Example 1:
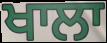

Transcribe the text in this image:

ਖਾਲਾ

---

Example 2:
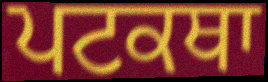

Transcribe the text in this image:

ਪਟਕਥਾ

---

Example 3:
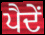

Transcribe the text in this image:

ਪੈਦੇਂ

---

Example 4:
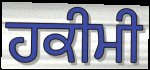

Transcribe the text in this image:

ਹਕੀਮੀ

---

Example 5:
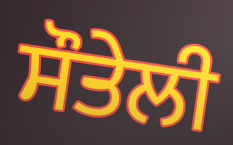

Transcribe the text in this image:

ਸੌਤੇਲੀ